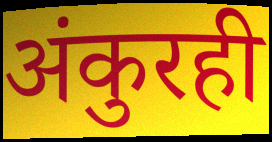
अंकुरही